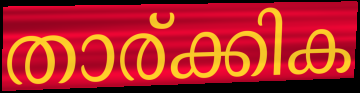
താര്ക്കിക